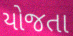
યોજતા